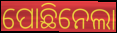
ପୋଛିନେଲା